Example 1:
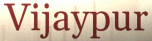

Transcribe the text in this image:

Vijaypur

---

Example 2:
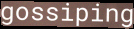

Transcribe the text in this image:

gossiping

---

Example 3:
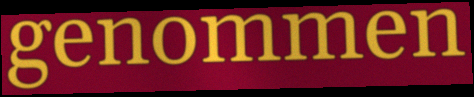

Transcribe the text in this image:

genommen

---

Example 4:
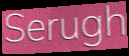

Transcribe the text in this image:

Serugh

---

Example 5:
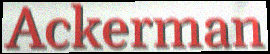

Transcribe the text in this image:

Ackerman